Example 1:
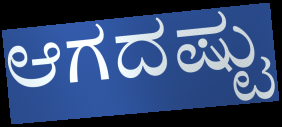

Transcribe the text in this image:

ಆಗದಷ್ಟು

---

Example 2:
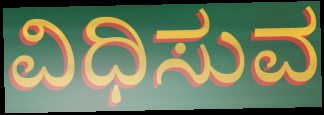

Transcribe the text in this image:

ವಿಧಿಸುವ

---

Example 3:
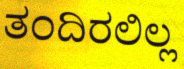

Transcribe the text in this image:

ತಂದಿರಲಿಲ್ಲ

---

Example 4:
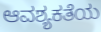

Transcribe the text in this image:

ಆವಶ್ಯಕತೆಯ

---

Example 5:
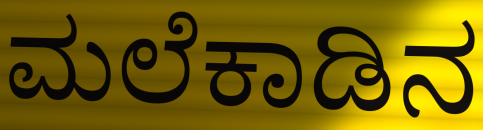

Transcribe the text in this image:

ಮಲೆಕಾಡಿನ